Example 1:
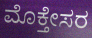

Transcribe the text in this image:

ಮೊಕ್ತೇಸರ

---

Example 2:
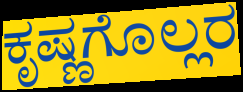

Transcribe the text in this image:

ಕೃಷ್ಣಗೊಲ್ಲರ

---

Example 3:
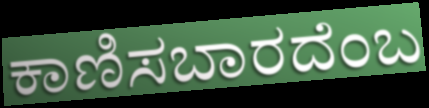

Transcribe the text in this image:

ಕಾಣಿಸಬಾರದೆಂಬ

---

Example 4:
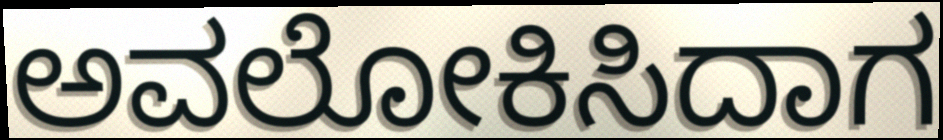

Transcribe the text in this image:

ಅವಲೋಕಿಸಿದಾಗ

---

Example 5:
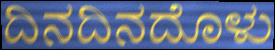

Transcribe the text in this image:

ದಿನದಿನದೊಳು